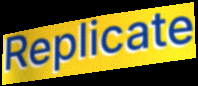
Replicate